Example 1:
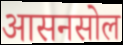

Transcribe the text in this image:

आसनसोल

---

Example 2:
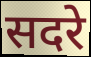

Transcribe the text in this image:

सदरे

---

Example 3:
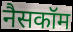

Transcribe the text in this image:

नैसकॉम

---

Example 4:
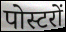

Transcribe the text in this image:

पोस्टरों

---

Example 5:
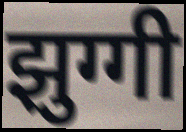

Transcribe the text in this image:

झुग्गी